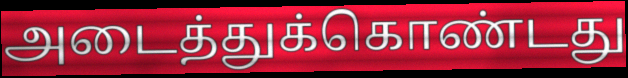
அடைத்துக்கொண்டது